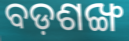
ବଡ଼ଶଙ୍ଖ